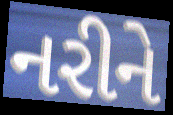
નરીને